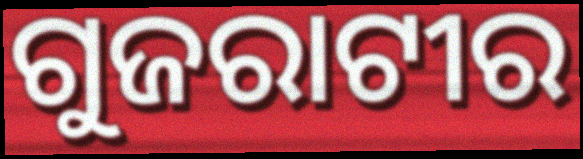
ଗୁଜରାଟୀର